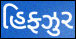
હિફ્ઝુર